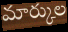
మార్కుల